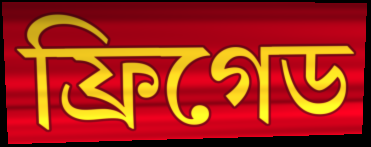
ফ্রিগেড